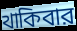
থাকিবার